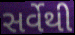
સર્વેથી